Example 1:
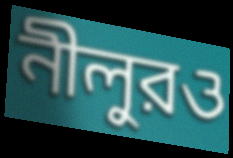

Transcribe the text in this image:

নীলুরও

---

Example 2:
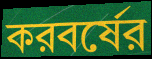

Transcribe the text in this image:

করবর্ষের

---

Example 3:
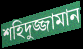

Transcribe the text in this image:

শহিদুজ্জামান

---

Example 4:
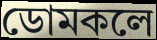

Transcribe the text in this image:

ডোমকলে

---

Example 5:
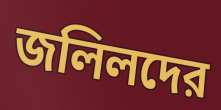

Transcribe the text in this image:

জলিলদের